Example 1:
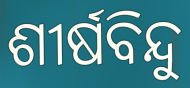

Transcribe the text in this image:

ଶୀର୍ଷବିନ୍ଦୁ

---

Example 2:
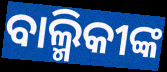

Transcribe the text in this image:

ବାଲ୍ମିକୀଙ୍କ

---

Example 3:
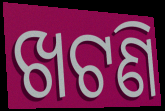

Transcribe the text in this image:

ଖଟଣି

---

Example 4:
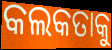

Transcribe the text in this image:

କଲକତାକୁ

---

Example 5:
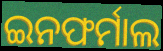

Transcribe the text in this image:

ଇନଫର୍ମାଲ